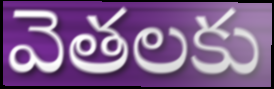
వెతలకు